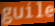
guile